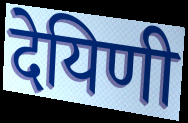
देयिणी